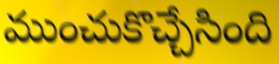
ముంచుకొచ్చేసింది